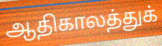
ஆதிகாலத்துக்